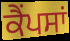
ਕੈਂਪਸਾਂ